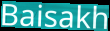
Baisakh